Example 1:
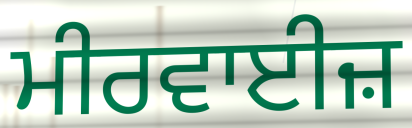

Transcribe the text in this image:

ਮੀਰਵਾਈਜ਼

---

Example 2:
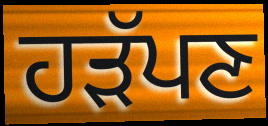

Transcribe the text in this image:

ਹੜੱਪਣ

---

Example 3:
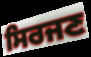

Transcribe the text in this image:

ਸਿਰਜਣ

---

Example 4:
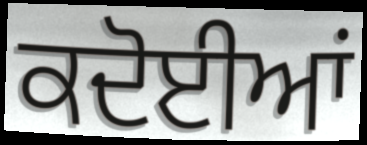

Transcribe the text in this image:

ਕਦੋਈਆਂ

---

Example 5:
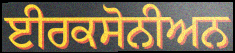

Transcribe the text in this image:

ਈਰਕਸੋਨੀਅਨ